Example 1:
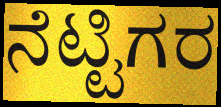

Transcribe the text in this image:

ನೆಟ್ಟಿಗರ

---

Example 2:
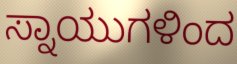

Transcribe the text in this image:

ಸ್ನಾಯುಗಳಿಂದ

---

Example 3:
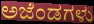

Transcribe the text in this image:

ಅಜೆಂಡಗಳು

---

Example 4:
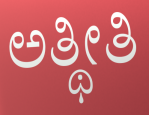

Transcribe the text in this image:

ಅತ್ಥೀತಿ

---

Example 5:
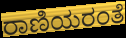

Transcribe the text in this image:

ರಾಣಿಯರಂತೆ